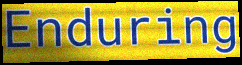
Enduring